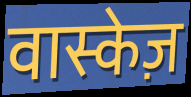
वास्केज़